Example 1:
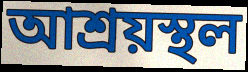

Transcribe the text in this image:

আশ্রয়স্থল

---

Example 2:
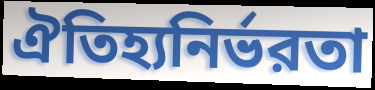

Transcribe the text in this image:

ঐতিহ্যনির্ভরতা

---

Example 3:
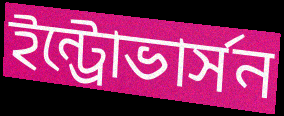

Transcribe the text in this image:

ইন্ট্রোভার্সন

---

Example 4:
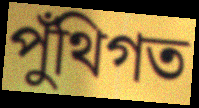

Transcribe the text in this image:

পুঁথিগত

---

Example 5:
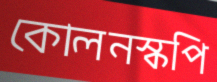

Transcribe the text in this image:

কোলনস্কপি